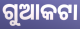
ଗୁଆକଟା